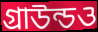
গ্রাউন্ডও